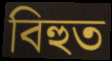
বিহুত